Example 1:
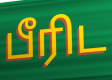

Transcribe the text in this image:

பீரிட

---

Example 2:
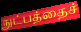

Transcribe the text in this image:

நுட்பத்தைச்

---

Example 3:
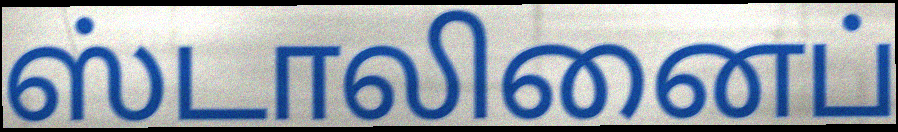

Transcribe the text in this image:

ஸ்டாலினைப்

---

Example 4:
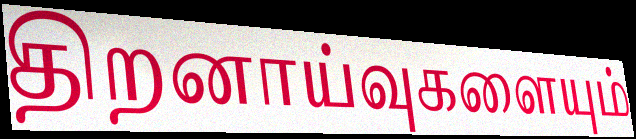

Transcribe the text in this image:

திறனாய்வுகளையும்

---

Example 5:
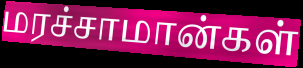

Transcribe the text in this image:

மரச்சாமான்கள்